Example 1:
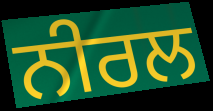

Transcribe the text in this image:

ਨੀਰਲ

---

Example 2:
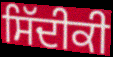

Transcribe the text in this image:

ਸਿੱਦੀਕੀ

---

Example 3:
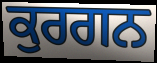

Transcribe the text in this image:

ਕੁਰਗਨ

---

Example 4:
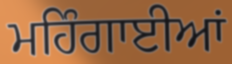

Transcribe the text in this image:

ਮਹਿੰਗਾਈਆਂ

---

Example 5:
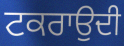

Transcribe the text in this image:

ਟਕਰਾਉਦੀ